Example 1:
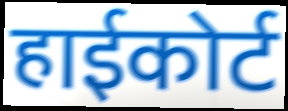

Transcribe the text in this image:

हाईकोर्ट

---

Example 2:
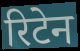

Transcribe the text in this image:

रिटेन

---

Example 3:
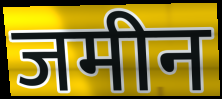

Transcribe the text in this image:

जमीन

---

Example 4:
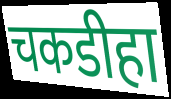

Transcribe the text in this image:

चकडीहा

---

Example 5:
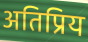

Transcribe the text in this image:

अतिप्रिय